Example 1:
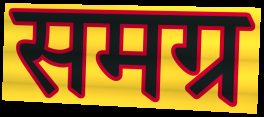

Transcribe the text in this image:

समग्र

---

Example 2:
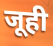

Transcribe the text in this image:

जूही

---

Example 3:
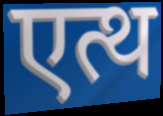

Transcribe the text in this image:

एत्थ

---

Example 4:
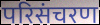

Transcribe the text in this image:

परिसंचरण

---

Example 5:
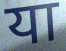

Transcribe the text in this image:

या